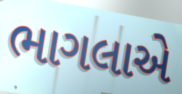
ભાગલાએ